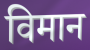
विमान